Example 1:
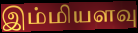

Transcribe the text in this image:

இம்மியளவு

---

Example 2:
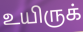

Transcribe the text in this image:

உயிருக்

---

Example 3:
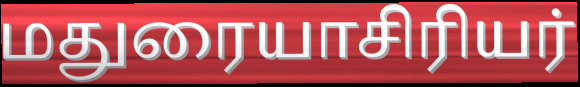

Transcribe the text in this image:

மதுரையாசிரியர்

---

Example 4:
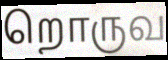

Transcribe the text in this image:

றொருவ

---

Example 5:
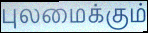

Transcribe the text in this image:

புலமைக்கும்